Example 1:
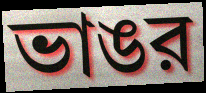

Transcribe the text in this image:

ভাঙর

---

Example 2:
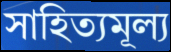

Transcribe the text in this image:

সাহিত্যমূল্য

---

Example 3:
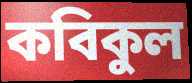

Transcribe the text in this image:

কবিকুল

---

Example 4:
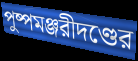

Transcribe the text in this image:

পুষ্পমঞ্জরীদণ্ডের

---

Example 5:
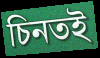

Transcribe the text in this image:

চিনতই